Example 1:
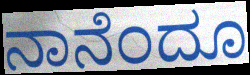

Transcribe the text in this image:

ನಾನೆಂದೂ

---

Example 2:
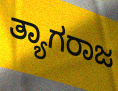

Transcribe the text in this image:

ತ್ಯಾಗರಾಜ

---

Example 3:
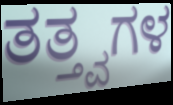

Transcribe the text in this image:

ತತ್ತ್ವಗಳ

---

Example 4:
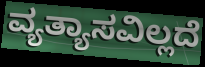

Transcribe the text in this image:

ವ್ಯತ್ಯಾಸವಿಲ್ಲದೆ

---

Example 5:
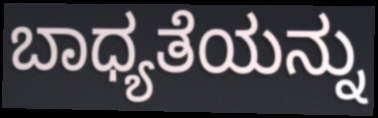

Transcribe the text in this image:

ಬಾಧ್ಯತೆಯನ್ನು